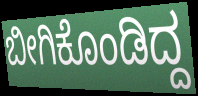
ಬೀಗಿಕೊಂಡಿದ್ದ